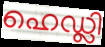
ഹെഡ്ലി